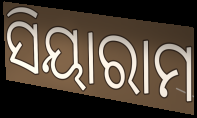
ସିୟାରାମ